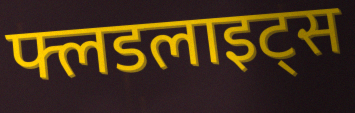
फ्लडलाइट्स